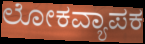
ಲೋಕವ್ಯಾಪಕ